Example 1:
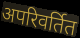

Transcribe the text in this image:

अपरिवर्तित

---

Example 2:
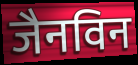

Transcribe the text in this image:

जैनविन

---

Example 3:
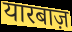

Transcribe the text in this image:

यारबाज़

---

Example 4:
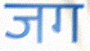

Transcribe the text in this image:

जग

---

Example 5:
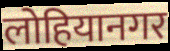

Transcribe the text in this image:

लोहियानगर